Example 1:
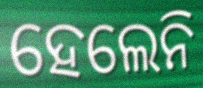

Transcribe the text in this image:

ହେଲେନି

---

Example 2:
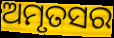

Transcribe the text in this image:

ଅମୃତସର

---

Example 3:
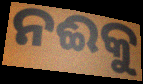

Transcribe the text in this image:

ନଈକୁ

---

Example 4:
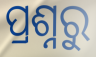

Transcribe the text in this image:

ପ୍ରଶ୍ନରୁ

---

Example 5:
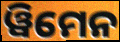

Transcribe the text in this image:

ୱିମେନ